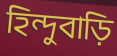
হিন্দুবাড়ি